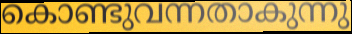
കൊണ്ടുവന്നതാകുന്നു